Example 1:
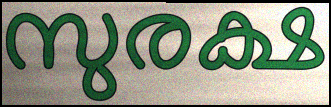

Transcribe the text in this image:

സുരക്ഷ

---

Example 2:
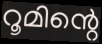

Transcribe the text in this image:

റൂമിന്റെ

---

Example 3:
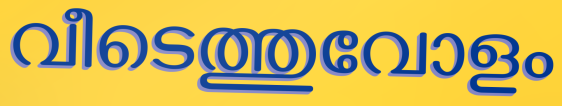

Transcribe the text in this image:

വീടെത്തുവോളം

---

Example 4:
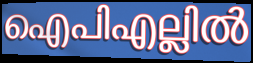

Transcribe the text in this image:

ഐപിഎല്ലിൽ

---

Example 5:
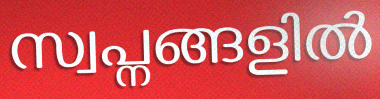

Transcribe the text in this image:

സ്വപ്നങ്ങളിൽ